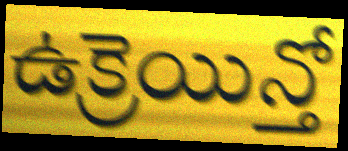
ఉక్రెయిన్తో